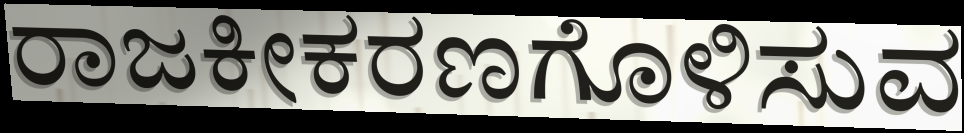
ರಾಜಕೀಕರಣಗೊಳಿಸುವ